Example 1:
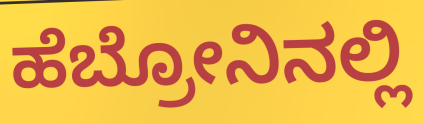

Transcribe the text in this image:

ಹೆಬ್ರೋನಿನಲ್ಲಿ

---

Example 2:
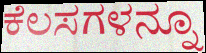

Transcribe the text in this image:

ಕೆಲಸಗಳನ್ನೂ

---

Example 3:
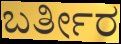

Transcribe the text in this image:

ಬರ್ತೀರ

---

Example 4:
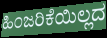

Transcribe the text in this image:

ಹಿಂಜರಿಕೆಯಿಲ್ಲದ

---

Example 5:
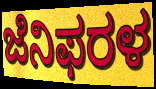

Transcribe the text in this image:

ಜೆನಿಫರಳ